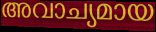
അവാച്യമായ